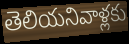
తెలియనివాళ్లకు